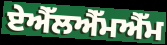
ਏਐੱਲਐੱਮਐੱਮ